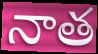
నాత